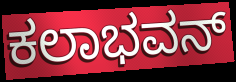
ಕಲಾಭವನ್